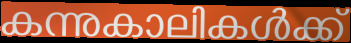
കന്നുകാലികൾക്ക്